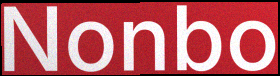
Nonbo